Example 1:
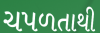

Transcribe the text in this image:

ચપળતાથી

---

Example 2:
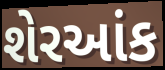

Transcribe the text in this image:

શેરઆંક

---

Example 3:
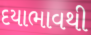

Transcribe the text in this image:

દયાભાવથી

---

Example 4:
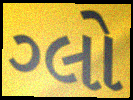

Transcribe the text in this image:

ગ્લો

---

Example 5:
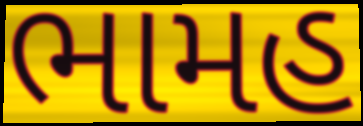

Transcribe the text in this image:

ભામહ